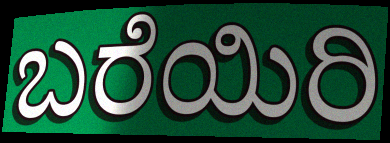
ಬರೆಯಿರಿ